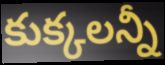
కుక్కలన్నీ